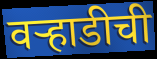
वऱ्हाडीची